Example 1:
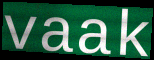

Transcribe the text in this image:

vaak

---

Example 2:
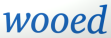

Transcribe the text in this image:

wooed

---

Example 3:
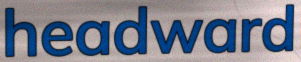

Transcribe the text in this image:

headward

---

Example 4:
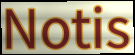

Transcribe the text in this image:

Notis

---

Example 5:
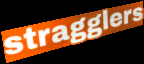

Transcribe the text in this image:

stragglers